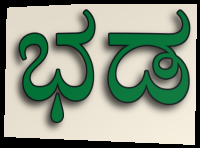
ಭಡ